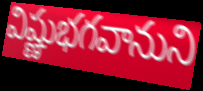
విష్ణుభగవానుని